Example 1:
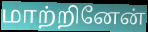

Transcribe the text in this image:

மாற்றினேன்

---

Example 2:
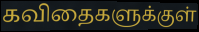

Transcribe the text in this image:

கவிதைகளுக்குள்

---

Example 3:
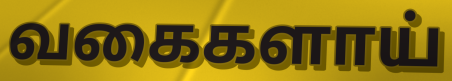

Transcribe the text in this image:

வகைகளாய்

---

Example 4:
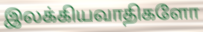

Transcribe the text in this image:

இலக்கியவாதிகளோ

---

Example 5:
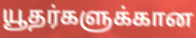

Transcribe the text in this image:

யூதர்களுக்கான